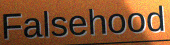
Falsehood